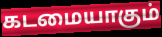
கடமையாகும்